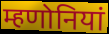
म्हणोनियां